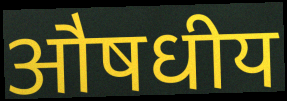
औषधीय